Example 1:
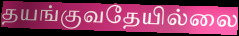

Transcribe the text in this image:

தயங்குவதேயில்லை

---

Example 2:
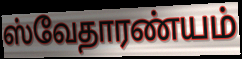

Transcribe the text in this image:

ஸ்வேதாரண்யம்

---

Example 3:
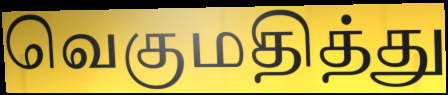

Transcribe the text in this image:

வெகுமதித்து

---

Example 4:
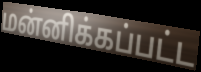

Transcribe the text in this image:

மன்னிக்கப்பட்ட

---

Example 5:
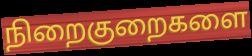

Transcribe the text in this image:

நிறைகுறைகளை